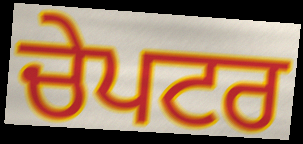
ਚੇਪਟਰ